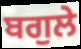
ਬਗੁਲੇ